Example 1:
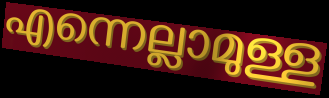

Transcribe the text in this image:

എന്നെല്ലാമുള്ള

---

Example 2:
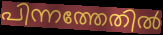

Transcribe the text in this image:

പിന്നത്തേതിൽ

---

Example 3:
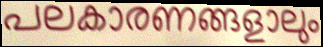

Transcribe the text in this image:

പലകാരണങ്ങളാലും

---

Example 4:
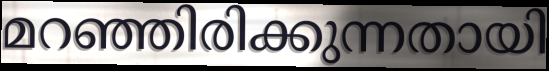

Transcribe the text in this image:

മറഞ്ഞിരിക്കുന്നതായി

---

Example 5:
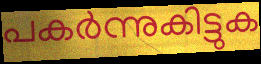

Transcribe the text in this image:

പകർന്നുകിട്ടുക